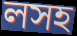
লসহ